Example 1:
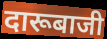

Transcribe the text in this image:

दारूबाजी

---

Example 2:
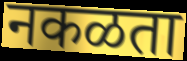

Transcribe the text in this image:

नकळता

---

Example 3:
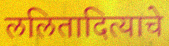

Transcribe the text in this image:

ललितादित्याचे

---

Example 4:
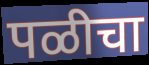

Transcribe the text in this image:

पळीचा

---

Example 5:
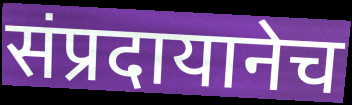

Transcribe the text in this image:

संप्रदायानेच